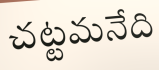
చట్టమనేది